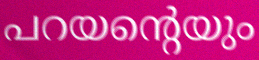
പറയന്റെയും